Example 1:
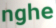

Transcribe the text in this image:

nghe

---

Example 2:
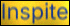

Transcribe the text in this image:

Inspite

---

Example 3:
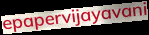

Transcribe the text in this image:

epapervijayavani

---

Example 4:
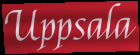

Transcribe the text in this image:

Uppsala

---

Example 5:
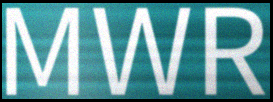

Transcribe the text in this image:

MWR